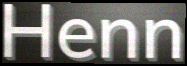
Henn